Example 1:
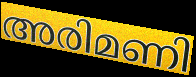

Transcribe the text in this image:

അരിമണി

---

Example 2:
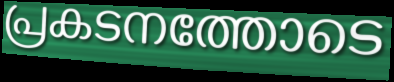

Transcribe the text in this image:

പ്രകടനത്തോടെ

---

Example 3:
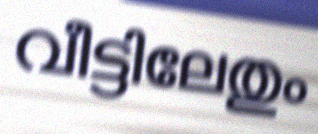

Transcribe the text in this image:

വീട്ടിലേതും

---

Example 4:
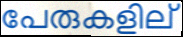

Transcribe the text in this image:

പേരുകളില്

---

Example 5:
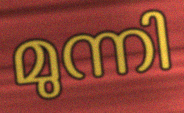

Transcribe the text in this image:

മുന്നി